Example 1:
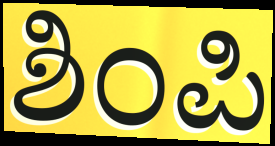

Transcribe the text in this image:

ಶಿಂಪಿ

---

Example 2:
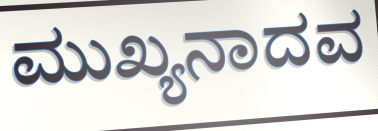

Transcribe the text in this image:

ಮುಖ್ಯನಾದವ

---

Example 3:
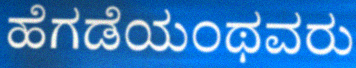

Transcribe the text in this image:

ಹೆಗಡೆಯಂಥವರು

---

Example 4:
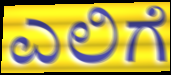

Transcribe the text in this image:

ಎಲಿಗೆ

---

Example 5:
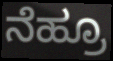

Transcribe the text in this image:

ನೆಹ್ರೂ